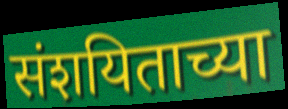
संशयिताच्या